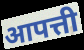
आपत्ती